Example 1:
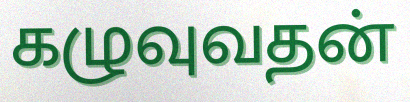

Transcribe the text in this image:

கழுவுவதன்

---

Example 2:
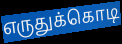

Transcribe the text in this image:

எருதுக்கொடி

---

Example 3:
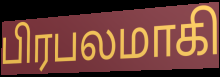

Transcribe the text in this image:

பிரபலமாகி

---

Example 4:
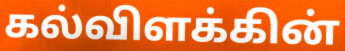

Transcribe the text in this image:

கல்விளக்கின்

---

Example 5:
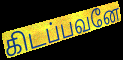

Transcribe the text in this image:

கிடப்பவனே